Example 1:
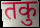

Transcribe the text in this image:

तकु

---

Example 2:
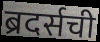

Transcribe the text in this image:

ब्रदर्सची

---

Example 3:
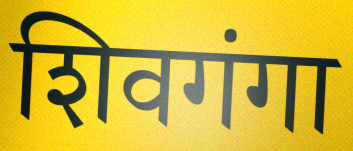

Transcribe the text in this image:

शिवगंगा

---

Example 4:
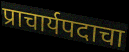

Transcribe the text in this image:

प्राचार्यपदाचा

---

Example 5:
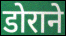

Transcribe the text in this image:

डोराने